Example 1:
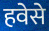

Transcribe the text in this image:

हवेसे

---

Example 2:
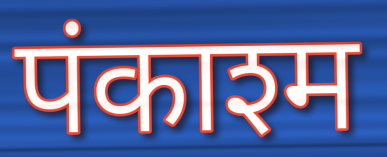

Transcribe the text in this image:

पंकाश्म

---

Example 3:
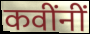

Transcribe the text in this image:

कवींनीं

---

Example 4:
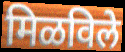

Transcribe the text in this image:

मिळविले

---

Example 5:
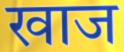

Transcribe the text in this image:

खाज